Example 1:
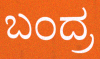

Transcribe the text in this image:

ಬಂದ್ರ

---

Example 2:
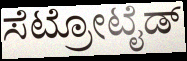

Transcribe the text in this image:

ಸೆಟ್ರೋಟೈಡ್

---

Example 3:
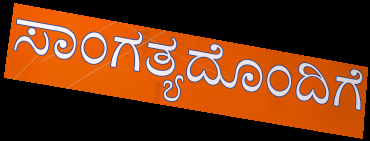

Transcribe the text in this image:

ಸಾಂಗತ್ಯದೊಂದಿಗೆ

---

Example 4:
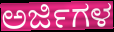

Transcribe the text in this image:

ಅರ್ಜಿಗಳ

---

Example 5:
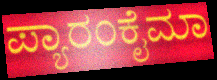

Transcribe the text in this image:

ಪ್ಯಾರಂಕೈಮಾ